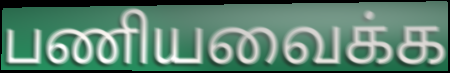
பணியவைக்க